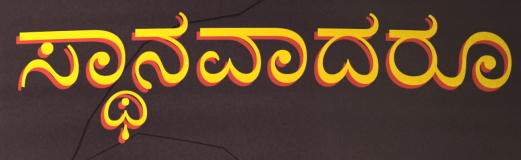
ಸ್ಥಾನವಾದರೂ